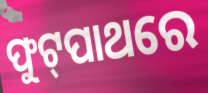
ଫୁଟ୍‍ପାଥରେ